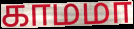
காமமா